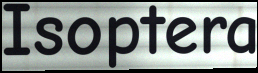
Isoptera